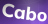
Cabo